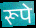
रूपे